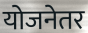
योजनेतर